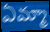
ఏమ్మా